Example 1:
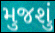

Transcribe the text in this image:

મુજશું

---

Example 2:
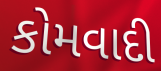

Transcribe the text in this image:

કોમવાદી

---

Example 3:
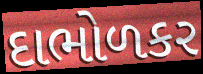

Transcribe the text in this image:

દાભોળકર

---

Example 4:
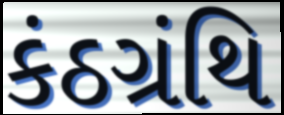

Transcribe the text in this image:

કંઠગ્રંથિ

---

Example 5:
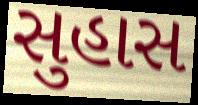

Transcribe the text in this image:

સુહાસ